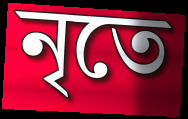
নৃতে